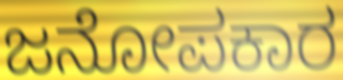
ಜನೋಪಕಾರ